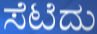
ಸೆಟೆದು